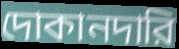
দোকানদারি